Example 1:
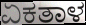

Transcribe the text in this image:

ಏಕತಾಳ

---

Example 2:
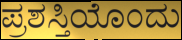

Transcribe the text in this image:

ಪ್ರಶಸ್ತಿಯೊಂದು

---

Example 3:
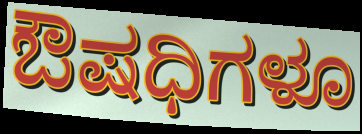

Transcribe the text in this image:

ಔಷಧಿಗಳೂ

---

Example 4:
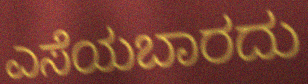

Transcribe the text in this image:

ಎಸೆಯಬಾರದು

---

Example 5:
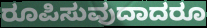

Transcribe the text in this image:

ರೂಪಿಸುವುದಾದರೂ